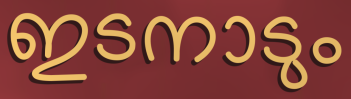
ഇടനാടും